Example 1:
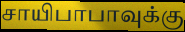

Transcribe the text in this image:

சாயிபாபாவுக்கு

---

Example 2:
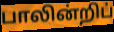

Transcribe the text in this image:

பாலின்றிப்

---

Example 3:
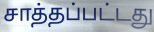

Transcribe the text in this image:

சாத்தப்பட்டது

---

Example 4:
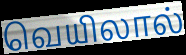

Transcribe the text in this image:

வெயிலால்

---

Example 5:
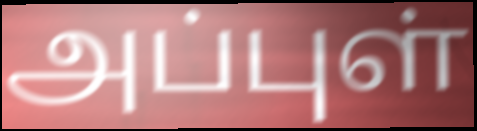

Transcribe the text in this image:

அப்புள்